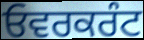
ਓਵਰਕਰੰਟ